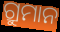
ଗ୍ରୁମାନ